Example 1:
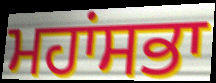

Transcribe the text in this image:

ਮਹਾਂਸਭਾ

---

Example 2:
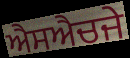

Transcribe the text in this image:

ਐਸਐਚਜੇ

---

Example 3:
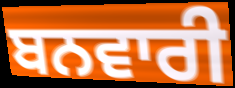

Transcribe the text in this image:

ਬਨਵਾਰੀ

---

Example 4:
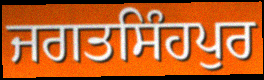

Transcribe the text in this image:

ਜਗਤਸਿੰਹਪੁਰ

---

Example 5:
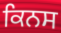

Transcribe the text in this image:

ਕਿਨਸ